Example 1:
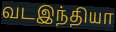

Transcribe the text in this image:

வடஇந்தியா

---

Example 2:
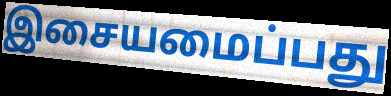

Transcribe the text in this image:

இசையமைப்பது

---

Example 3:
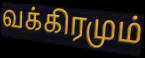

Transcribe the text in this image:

வக்கிரமும்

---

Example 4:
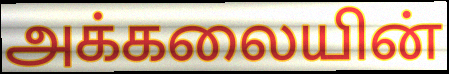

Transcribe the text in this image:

அக்கலையின்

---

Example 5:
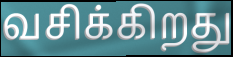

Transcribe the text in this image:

வசிக்கிறது